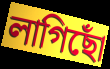
লাগিছোঁ